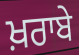
ਖ਼ਰਾਬੇ